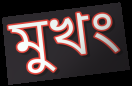
মুখং